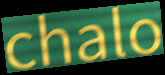
chalo